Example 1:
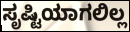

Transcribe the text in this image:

ಸೃಷ್ಟಿಯಾಗಲಿಲ್ಲ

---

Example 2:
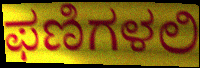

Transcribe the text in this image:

ಫಣಿಗಳಲಿ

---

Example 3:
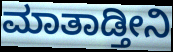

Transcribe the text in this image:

ಮಾತಾಡ್ತೀನಿ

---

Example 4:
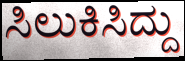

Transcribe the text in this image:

ಸಿಲುಕಿಸಿದ್ದು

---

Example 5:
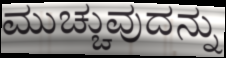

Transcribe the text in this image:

ಮುಚ್ಚುವುದನ್ನು